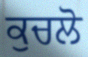
ਕੁਚਲੋ